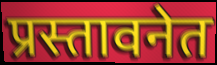
प्रस्तावनेत